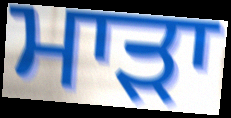
ਮਾਡ਼ਾ